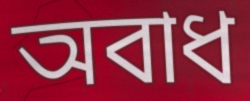
অবাধ